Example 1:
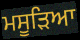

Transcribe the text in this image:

ਮਸੂੜਿਆ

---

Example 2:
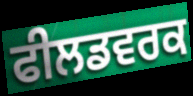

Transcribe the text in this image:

ਫੀਲਡਵਰਕ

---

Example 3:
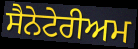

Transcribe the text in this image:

ਸੈਨੇਟੇਰੀਅਮ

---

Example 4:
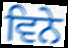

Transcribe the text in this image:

ਵਿਨੇ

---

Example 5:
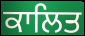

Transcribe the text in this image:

ਕਾਲਿਤ